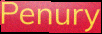
Penury